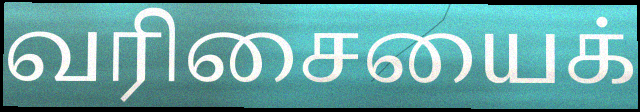
வரிசையைக்